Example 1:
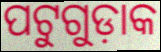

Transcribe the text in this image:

ପଟୁଗୁଡ଼ାକ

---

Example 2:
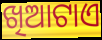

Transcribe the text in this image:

ଖିଆଟାଏ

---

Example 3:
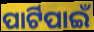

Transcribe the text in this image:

ପାର୍ଟିପାଇଁ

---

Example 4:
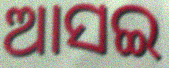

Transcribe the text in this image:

ଆସଇ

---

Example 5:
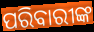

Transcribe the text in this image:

ପରିବାରୀଙ୍କ